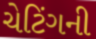
ચેટિંગની